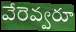
వేరెవ్వరూ